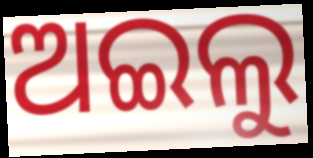
ଅଇଲୁ